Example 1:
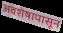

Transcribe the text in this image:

अवशेषापासून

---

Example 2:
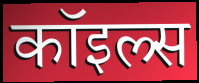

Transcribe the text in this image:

कॉइल्स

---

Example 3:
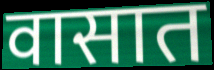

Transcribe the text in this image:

वासात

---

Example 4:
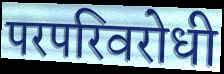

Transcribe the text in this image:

परपरिवरोधी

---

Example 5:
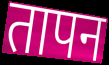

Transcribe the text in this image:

तापन